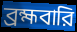
ব্রহ্মবারি